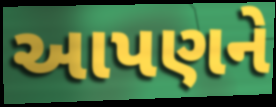
આપણને